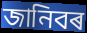
জানিবৰ